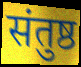
संतुष्ठ